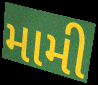
મામી